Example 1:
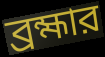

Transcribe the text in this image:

ব্রহ্মার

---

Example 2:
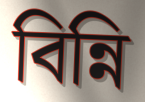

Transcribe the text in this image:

বিন্নি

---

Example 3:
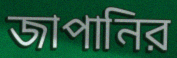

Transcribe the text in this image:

জাপানির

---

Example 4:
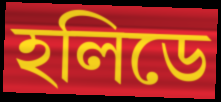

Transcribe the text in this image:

হলিডে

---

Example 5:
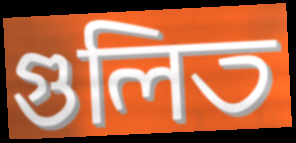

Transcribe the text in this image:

গুলিত